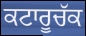
ਕਟਾਰੂਚੱਕ